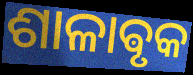
ଶାଳାଵୃକ